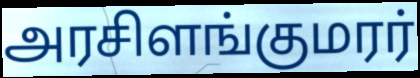
அரசிளங்குமரர்